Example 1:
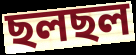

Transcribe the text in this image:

ছলছল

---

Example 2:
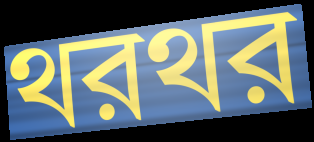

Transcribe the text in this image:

থরথর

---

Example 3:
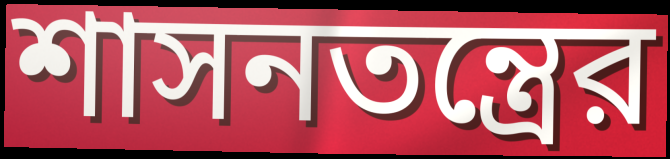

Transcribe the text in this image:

শাসনতন্ত্রের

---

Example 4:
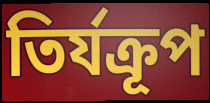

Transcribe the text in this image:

তির্যক্রূপ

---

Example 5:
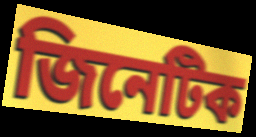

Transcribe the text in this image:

জিনেটিক